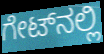
ಗೇಟ್‌ನಲ್ಲಿ